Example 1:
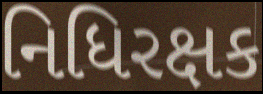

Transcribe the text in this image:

નિધિરક્ષક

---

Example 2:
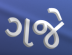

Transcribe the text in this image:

ગજે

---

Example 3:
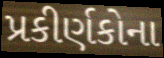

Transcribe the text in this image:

પ્રકીર્ણકોના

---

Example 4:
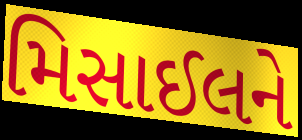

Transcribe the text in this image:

મિસાઈલને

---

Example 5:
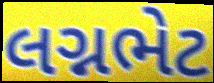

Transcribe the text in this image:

લગ્નભેટ